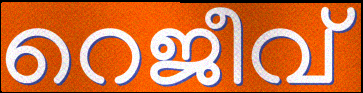
റെജീവ്